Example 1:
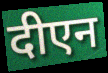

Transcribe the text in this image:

दीएन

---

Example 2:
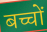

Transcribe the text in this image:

बच्‍चों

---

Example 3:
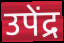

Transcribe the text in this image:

उपेंद्र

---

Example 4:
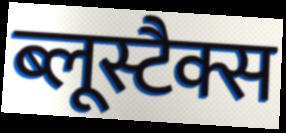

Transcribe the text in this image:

ब्लूस्टैक्स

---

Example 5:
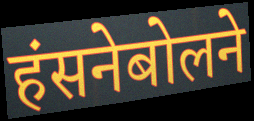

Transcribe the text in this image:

हंसनेबोलने